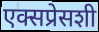
एक्सप्रेसशी